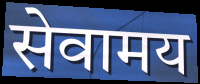
सेवामय